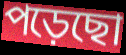
পড়েছো